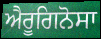
ਐਰੂਗਿਨੋਸਾ